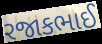
રજાકભાઈ